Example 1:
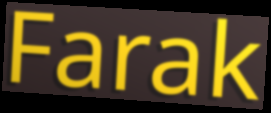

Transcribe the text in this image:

Farak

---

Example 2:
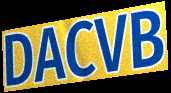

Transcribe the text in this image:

DACVB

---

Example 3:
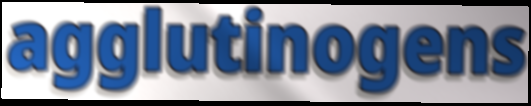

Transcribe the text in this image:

agglutinogens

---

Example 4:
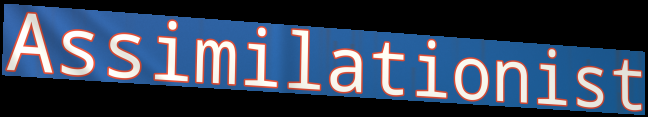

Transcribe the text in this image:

Assimilationist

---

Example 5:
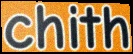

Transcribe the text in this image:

chith